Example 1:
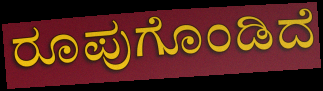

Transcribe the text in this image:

ರೂಪುಗೊಂಡಿದೆ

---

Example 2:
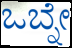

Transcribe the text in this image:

ಒಬ್ನೇ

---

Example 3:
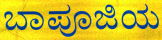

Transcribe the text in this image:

ಬಾಪೂಜಿಯ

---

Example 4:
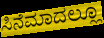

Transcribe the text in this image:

ಸಿನೆಮಾದಲ್ಲೂ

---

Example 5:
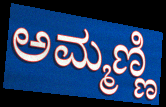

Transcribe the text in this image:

ಅಮ್ಮಣ್ಣಿ